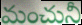
మంచునీ